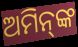
ଅମିନ୍‌ଙ୍କ